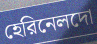
হেরিনেলদো